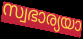
സ്വഭാര്യയാ